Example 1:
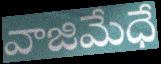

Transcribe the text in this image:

వాజిమేధే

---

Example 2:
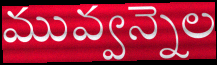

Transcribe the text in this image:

మువ్వన్నెల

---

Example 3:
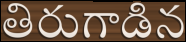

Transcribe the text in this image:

తిరుగాడిన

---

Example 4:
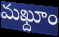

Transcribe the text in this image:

మఖ్దూం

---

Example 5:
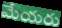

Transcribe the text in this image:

మేయరు